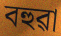
বহুৱা